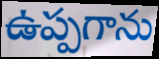
ఉప్పగాను